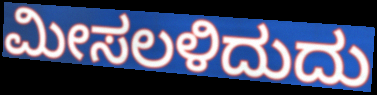
ಮೀಸಲಳಿದುದು